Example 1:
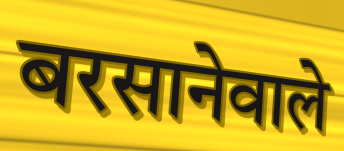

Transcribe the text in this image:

बरसानेवाले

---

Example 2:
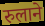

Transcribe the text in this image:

रुलाने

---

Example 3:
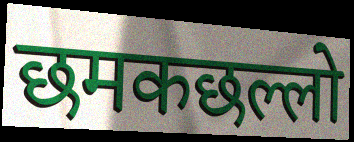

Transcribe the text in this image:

छमकछल्लो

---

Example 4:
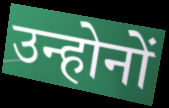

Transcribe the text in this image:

उन्होनों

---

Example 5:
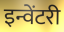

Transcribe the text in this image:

इन्वेंटरी